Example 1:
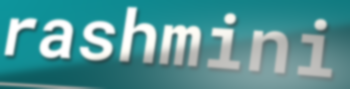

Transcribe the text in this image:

rashmini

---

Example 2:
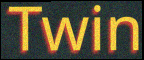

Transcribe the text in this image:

Twin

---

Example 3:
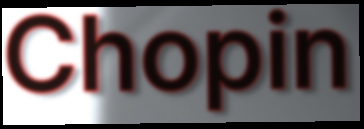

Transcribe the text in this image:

Chopin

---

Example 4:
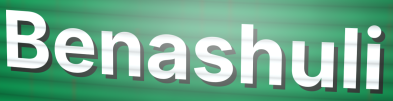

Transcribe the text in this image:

Benashuli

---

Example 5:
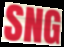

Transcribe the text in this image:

SNG